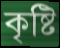
কৃষ্টি